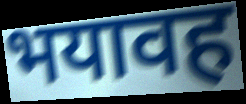
भयावह